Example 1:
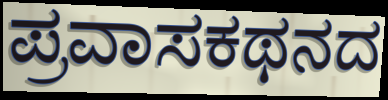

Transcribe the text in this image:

ಪ್ರವಾಸಕಥನದ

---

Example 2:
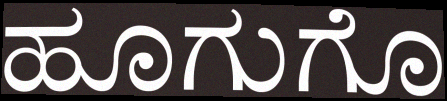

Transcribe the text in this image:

ಹೂಗುಗೊ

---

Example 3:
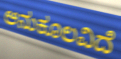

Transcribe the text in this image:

ಅನುಕೂಲವಿದೆ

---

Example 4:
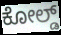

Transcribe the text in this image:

ಕೋಲ್ಡ್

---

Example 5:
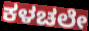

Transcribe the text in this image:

ಕಳಚಲೇ